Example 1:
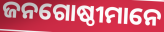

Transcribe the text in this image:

ଜନଗୋଷ୍ଠୀମାନେ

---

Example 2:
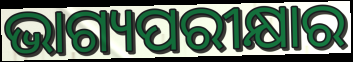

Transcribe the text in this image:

ଭାଗ୍ୟପରୀକ୍ଷାର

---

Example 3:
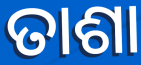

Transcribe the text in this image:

ତାଶା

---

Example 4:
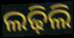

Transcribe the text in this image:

ଲଢ଼ିଲି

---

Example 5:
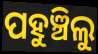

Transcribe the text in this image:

ପହୁଞ୍ଚିଲୁ